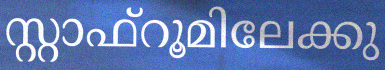
സ്റ്റാഫ്റൂമിലേക്കു